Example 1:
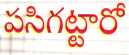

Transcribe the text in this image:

పసిగట్టారో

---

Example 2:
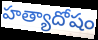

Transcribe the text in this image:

హత్యాదోషం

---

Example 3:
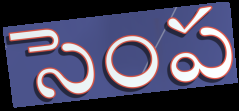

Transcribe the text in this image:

సెంప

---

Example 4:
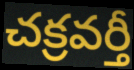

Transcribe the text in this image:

చక్రవర్తీ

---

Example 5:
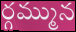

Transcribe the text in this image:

ర్గమ్మున